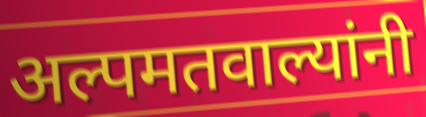
अल्पमतवाल्यांनी